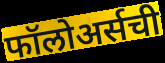
फॉलोअर्सची